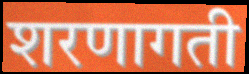
शरणागती